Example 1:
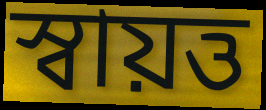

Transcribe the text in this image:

স্বায়ত্ত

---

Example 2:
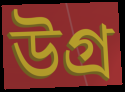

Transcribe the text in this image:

উগ্ৰ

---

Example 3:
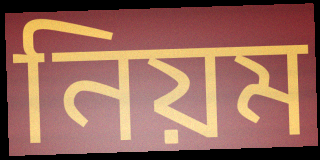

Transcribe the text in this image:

নিয়ম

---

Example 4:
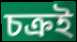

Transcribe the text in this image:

চক্ৰই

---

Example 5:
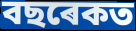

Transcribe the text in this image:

বছৰেকত